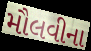
મૌલવીના